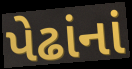
પેઢાંનાં